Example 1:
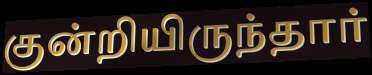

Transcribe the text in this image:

குன்றியிருந்தார்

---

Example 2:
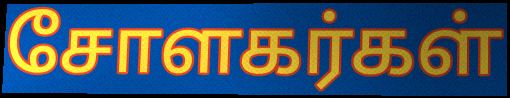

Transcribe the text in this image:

சோளகர்கள்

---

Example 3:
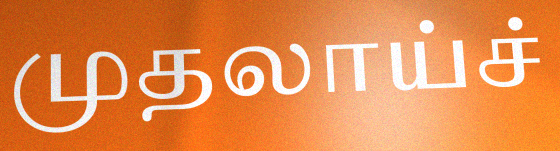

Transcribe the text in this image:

முதலாய்ச்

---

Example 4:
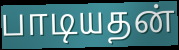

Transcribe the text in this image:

பாடியதன்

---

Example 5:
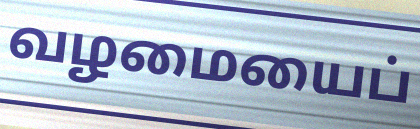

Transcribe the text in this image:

வழமையைப்